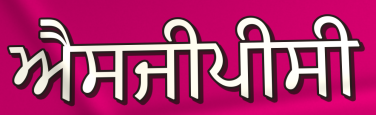
ਐਸਜੀਪੀਸੀ